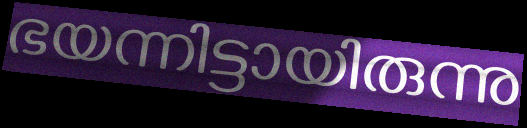
ഭയന്നിട്ടായിരുന്നു